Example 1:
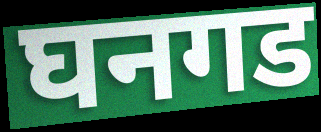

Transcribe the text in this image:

घनगड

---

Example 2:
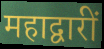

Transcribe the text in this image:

महाद्वारीं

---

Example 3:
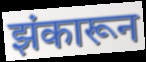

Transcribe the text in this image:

झंकारून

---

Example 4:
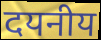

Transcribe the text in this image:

दयनीय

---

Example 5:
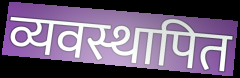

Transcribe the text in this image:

व्यवस्थापित